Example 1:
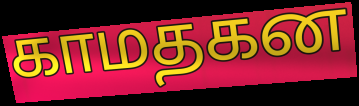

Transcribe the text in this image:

காமதகன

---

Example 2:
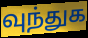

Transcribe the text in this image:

வுந்துக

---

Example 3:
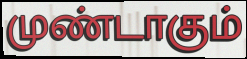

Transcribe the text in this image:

முண்டாகும்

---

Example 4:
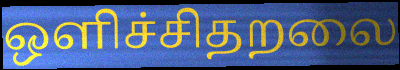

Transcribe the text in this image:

ஒளிச்சிதறலை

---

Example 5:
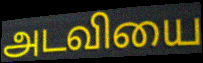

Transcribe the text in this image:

அடவியை